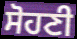
ਸੋਹਣੀ